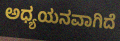
ಅಧ್ಯಯನವಾಗಿದೆ